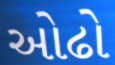
ઓઢો